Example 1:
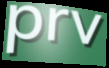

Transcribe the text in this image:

prv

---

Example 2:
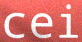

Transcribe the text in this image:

cei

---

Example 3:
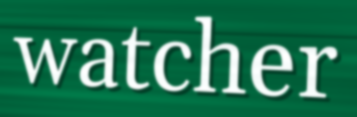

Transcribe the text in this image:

watcher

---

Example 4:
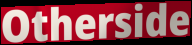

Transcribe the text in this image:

Otherside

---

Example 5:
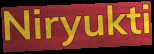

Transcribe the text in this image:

Niryukti